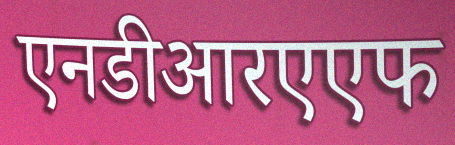
एनडीआरएएफ